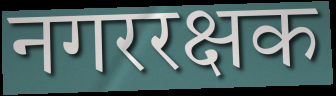
नगररक्षक